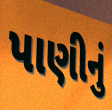
પાણીનું